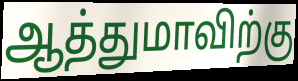
ஆத்துமாவிற்கு